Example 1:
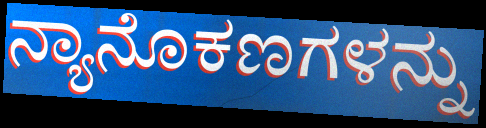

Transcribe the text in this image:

ನ್ಯಾನೊಕಣಗಳನ್ನು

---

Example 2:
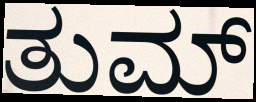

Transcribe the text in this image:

ತುಮ್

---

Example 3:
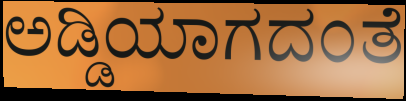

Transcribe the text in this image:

ಅಡ್ಡಿಯಾಗದಂತೆ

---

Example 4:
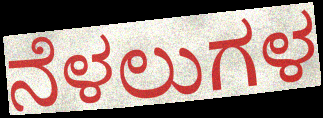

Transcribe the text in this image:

ನೆಳಲುಗಳ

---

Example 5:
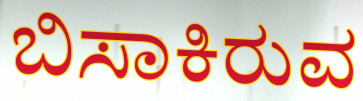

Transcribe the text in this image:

ಬಿಸಾಕಿರುವ